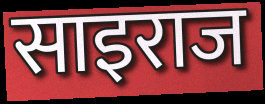
साइराज